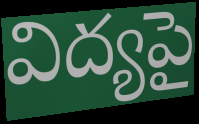
విద్యపై